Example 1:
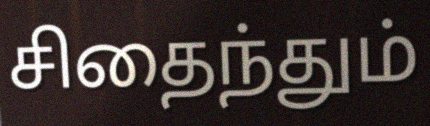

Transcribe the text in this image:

சிதைந்தும்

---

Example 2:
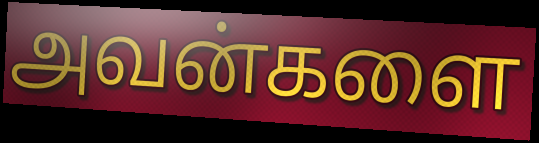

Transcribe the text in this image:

அவன்களை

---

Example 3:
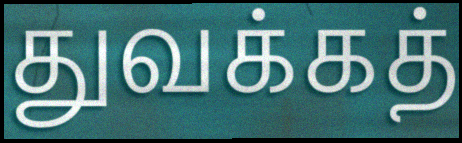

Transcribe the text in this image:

துவக்கத்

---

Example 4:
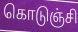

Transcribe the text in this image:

கொடுஞ்சி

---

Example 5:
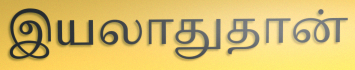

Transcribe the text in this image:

இயலாதுதான்